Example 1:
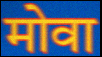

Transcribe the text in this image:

मोवा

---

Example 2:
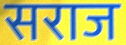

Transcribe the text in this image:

सराज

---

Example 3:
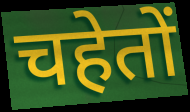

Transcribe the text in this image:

चहेतों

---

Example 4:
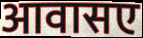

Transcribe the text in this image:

आवासए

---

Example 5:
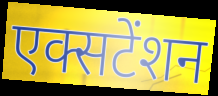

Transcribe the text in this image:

एक्सटेंशन